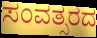
ಸಂವತ್ಸರದ